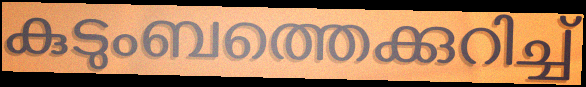
കുടുംബത്തെക്കുറിച്ച്